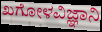
ಖಗೋಳವಿಜ್ಞಾನಿ